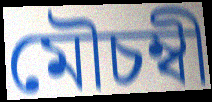
মৌচম্বী